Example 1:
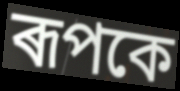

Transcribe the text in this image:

ৰূপকে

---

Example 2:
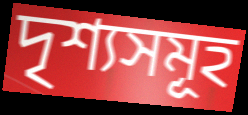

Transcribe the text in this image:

দৃশ্যসমূহ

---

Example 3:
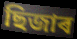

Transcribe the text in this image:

ছিজাৰ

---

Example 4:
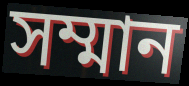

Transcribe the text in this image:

সম্মান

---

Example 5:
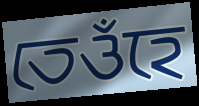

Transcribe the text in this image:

তেওঁহে